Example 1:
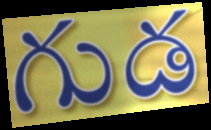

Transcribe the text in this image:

గుడ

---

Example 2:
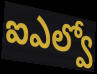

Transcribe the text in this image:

ఐఎల్వో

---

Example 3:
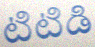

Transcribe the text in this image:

టిటిడి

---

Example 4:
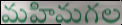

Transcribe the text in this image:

మహిమగల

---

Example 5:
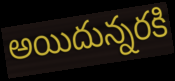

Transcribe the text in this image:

అయిదున్నరకి